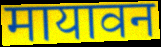
मायावन